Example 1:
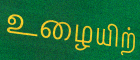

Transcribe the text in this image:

உழையிற்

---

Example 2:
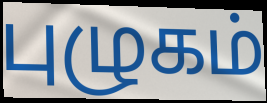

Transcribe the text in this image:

புழுகம்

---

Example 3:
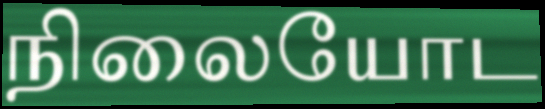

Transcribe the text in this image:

நிலையோட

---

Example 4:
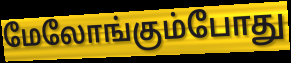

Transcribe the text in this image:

மேலோங்கும்போது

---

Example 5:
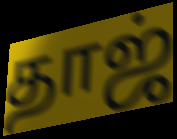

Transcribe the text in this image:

தாஜ்